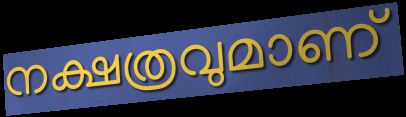
നക്ഷത്രവുമാണ്